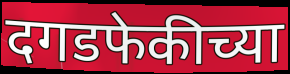
दगडफेकीच्या